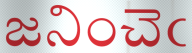
జనించెఁ